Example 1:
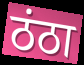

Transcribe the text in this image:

ठंठा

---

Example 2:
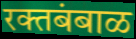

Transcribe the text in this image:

रक्तबंबाळ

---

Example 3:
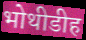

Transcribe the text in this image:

भोथीडीह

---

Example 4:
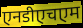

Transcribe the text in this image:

एनडीएचएम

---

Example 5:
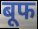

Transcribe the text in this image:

बूफ